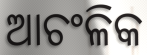
ଆଚଂଳିକ